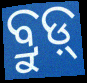
ବ୍ରୁଡ଼୍